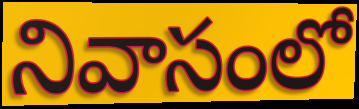
నివాసంలో